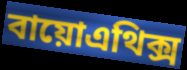
বায়োএথিক্স